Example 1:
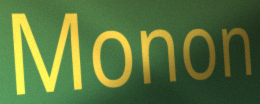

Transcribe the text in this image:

Monon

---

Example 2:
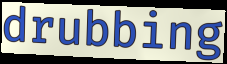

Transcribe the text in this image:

drubbing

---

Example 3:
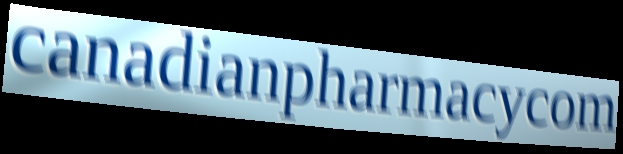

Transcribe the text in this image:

canadianpharmacycom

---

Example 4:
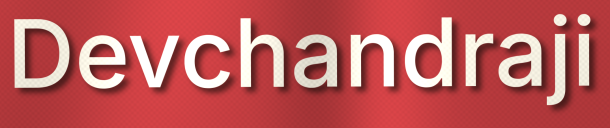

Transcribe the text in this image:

Devchandraji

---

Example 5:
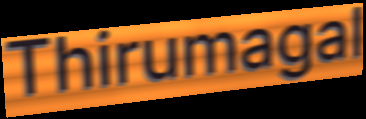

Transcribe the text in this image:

Thirumagal